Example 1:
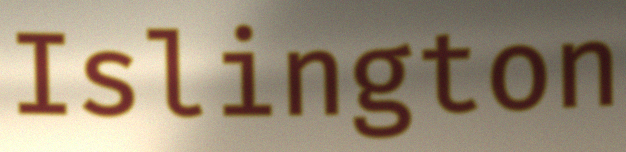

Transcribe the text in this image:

Islington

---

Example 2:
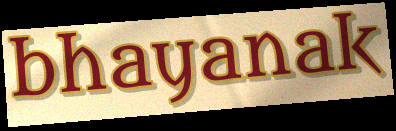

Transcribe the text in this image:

bhayanak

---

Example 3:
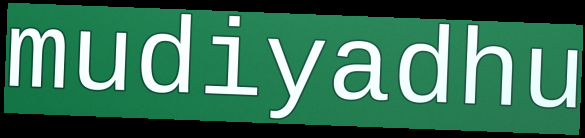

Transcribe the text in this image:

mudiyadhu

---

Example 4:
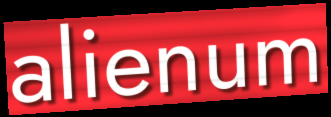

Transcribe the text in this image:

alienum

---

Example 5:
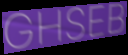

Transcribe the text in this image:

GHSEB